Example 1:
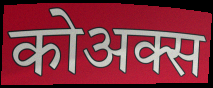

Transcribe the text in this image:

कोअक्स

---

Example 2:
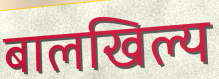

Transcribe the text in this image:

बालखिल्य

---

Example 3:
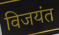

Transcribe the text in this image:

विजयंत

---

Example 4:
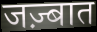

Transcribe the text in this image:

जज़्बात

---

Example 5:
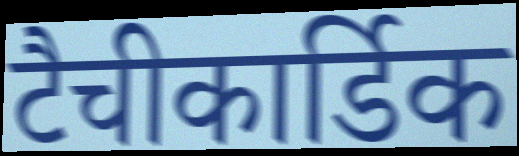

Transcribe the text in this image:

टैचीकार्डिक